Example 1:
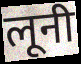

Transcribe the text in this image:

लूनी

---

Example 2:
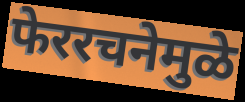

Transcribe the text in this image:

फेररचनेमुळे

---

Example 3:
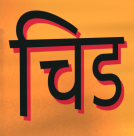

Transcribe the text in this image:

चिड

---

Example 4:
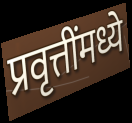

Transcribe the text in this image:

प्रवृत्तींमध्ये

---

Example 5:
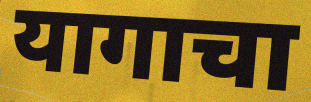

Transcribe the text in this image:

यागाचा